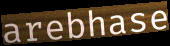
arebhase